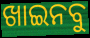
ଖାଇନବୁ